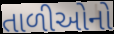
તાળીઓનો